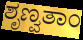
ಶೃಣ್ವತಾಂ